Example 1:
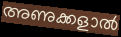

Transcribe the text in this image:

അണുക്കളാൽ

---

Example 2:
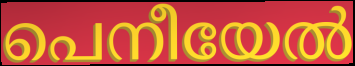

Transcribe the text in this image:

പെനീയേൽ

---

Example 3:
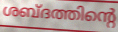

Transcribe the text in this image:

ശബ്ദത്തിന്റെ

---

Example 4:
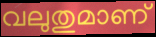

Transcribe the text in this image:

വലുതുമാണ്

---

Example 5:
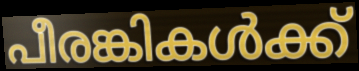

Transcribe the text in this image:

പീരങ്കികൾക്ക്